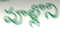
వూళ్లొని